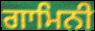
ਗਾਮਿਨੀ